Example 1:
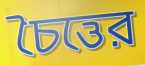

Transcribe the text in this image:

চৈত্তের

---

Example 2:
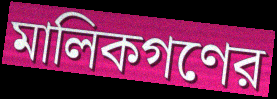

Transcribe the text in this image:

মালিকগণের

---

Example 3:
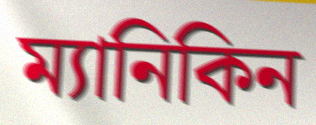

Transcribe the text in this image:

ম্যানিকিন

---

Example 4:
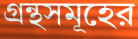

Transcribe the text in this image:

গ্রন্থসমূহের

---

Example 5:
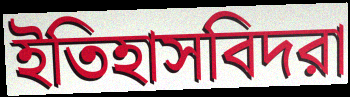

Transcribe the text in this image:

ইতিহাসবিদরা